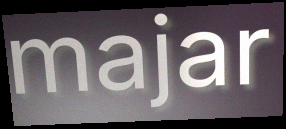
majar